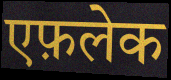
एफ़लेक